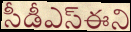
సీడీఎస్ఈని